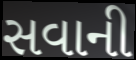
સવાની